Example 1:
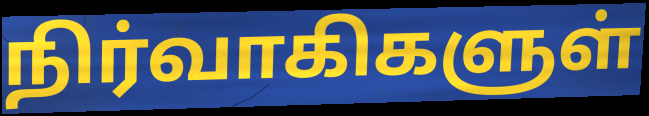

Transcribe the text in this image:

நிர்வாகிகளுள்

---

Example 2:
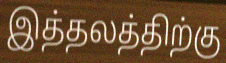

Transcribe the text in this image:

இத்தலத்திற்கு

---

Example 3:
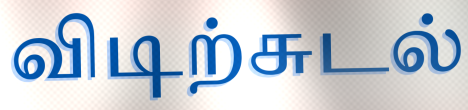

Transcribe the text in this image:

விடிற்சுடல்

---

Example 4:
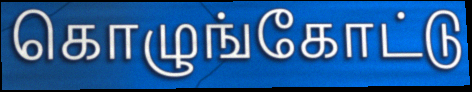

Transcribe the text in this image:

கொழுங்கோட்டு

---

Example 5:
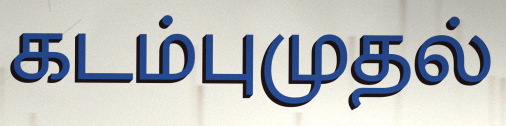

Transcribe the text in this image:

கடம்புமுதல்